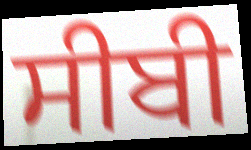
ਸੀਬੀ